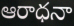
ఆరాధనా